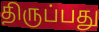
திருப்பது